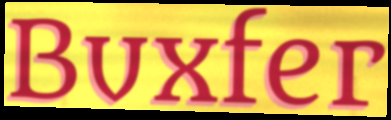
Buxfer